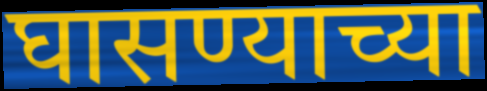
घासण्याच्या